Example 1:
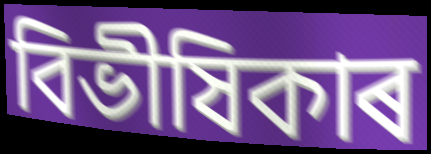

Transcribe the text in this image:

বিভীষিকাৰ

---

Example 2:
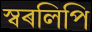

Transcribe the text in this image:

স্বৰলিপি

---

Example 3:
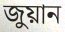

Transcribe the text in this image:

জুয়ান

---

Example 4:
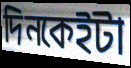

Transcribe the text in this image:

দিনকেইটা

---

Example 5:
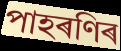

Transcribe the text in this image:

পাহৰণিৰ